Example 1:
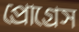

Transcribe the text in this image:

প্রোগ্রেস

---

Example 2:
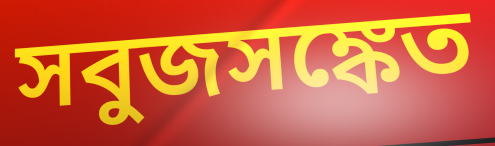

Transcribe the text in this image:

সবুজসঙ্কেত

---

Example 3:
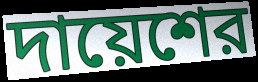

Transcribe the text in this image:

দায়েশের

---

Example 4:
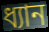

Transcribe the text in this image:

ধ্যান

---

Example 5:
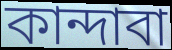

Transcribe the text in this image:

কান্দাবা